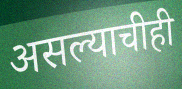
असल्याचीही